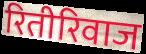
रितीरिवाज